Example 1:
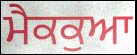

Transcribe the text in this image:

ਮੈਕਕੁਆ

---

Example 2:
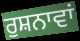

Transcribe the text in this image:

ਰੁਸ਼ਨਾਵਾਂ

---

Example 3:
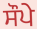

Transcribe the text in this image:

ਸੌਪੇ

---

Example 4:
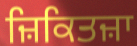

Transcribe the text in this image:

ਜ਼ਿਕਿਤਜ਼ਾ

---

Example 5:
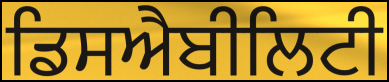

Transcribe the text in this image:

ਡਿਸਐਬੀਲਿਟੀ